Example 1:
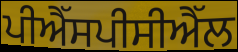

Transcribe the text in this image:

ਪੀਐੱਸਪੀਸੀਐੱਲ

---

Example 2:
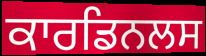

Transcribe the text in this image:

ਕਾਰਡਿਨਲਸ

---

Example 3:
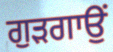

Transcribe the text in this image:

ਗੁੜਗਾਉਂ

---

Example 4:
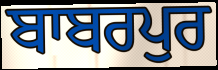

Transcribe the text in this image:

ਬਾਬਰਪੁਰ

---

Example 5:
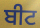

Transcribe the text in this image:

ਬੀਟ